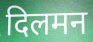
दिलमन